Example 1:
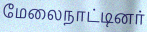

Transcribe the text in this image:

மேலைநாட்டினர்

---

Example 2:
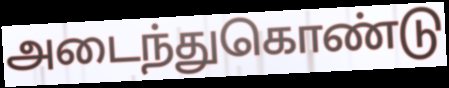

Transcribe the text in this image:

அடைந்துகொண்டு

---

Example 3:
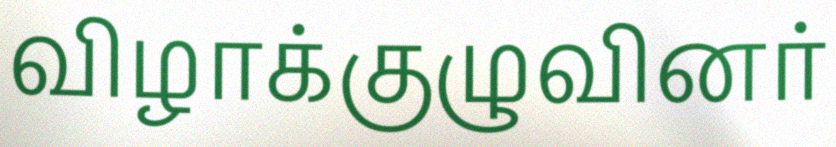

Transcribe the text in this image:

விழாக்குழுவினர்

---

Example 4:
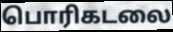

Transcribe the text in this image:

பொரிகடலை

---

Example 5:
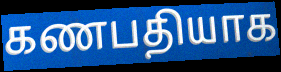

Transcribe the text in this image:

கணபதியாக